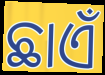
ଛାଏଁ